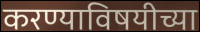
करण्याविषयीच्या